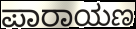
ಪಾರಾಯಣ